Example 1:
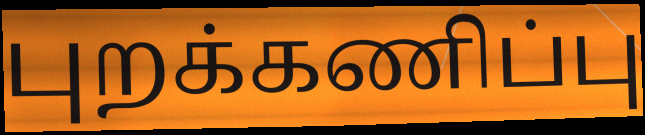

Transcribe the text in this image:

புறக்கணிப்பு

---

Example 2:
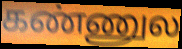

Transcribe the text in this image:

கண்ணுல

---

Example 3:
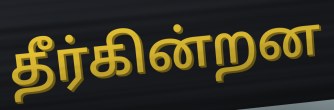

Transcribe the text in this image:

தீர்கின்றன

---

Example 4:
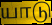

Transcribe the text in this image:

யாடு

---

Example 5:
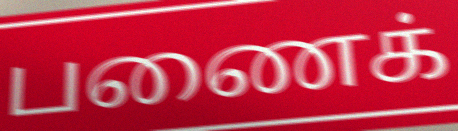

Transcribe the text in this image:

பணைக்